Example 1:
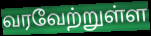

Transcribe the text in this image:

வரவேற்றுள்ள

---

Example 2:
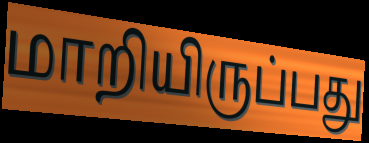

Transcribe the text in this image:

மாறியிருப்பது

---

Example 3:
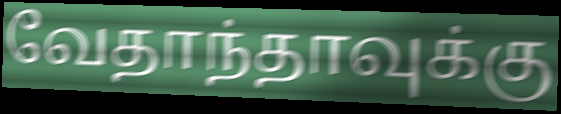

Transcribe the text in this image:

வேதாந்தாவுக்கு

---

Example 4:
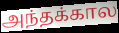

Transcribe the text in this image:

அந்தக்கால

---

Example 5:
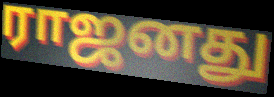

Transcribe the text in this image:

ராஜனது